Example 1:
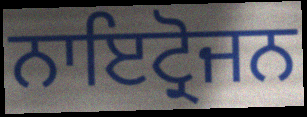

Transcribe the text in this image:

ਨਾਇਟ੍ਰੋਜਨ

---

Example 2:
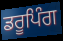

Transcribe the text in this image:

ਡਰੂਪਿੰਗ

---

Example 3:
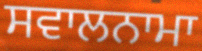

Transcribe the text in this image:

ਸਵਾਲਨਾਮਾ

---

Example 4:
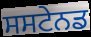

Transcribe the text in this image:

ਸਸਟੇਨਡ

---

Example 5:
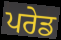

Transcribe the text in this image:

ਪਰੇਡ